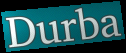
Durba